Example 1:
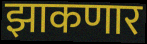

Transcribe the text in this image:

झाकणार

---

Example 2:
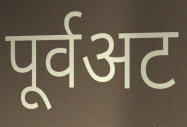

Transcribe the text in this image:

पूर्वअट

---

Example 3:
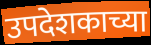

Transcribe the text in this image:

उपदेशकाच्या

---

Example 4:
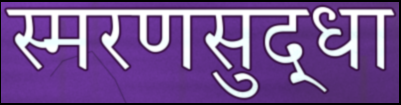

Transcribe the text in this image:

स्मरणसुद्धा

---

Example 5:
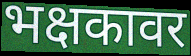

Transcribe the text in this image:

भक्षकावर